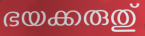
ഭയക്കരുതു്